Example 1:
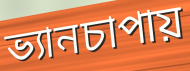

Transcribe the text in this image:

ভ্যানচাপায়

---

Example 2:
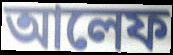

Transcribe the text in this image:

আলেফ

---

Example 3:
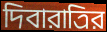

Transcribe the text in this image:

দিবারাত্রির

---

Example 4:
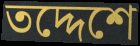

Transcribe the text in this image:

তদ্দেশে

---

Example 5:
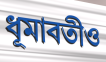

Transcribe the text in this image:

ধূমাবতীও